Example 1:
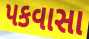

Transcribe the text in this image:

પકવાસા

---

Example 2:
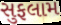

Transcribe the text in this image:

સુફલામ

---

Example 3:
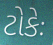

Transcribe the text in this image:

ટોકેઃ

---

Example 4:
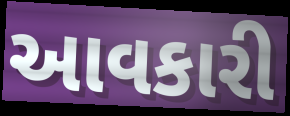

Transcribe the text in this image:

આવકારી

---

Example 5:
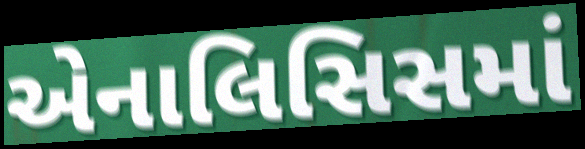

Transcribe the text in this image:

એનાલિસિસમાં